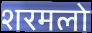
शरमलो